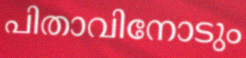
പിതാവിനോടും